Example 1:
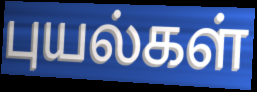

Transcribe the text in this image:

புயல்கள்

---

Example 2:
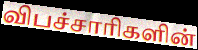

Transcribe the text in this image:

விபச்சாரிகளின்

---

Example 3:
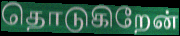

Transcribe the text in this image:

தொடுகிறேன்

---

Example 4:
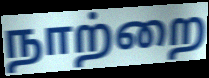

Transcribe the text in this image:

நாற்றை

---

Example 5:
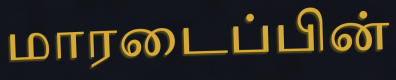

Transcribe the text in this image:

மாரடைப்பின்